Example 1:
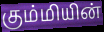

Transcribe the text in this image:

கும்மியின்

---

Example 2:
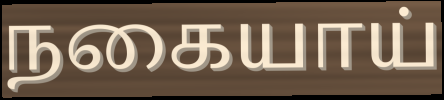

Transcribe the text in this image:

நகையாய்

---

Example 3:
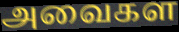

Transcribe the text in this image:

அவைகள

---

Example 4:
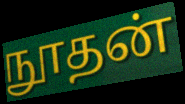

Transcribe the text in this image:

நூதன்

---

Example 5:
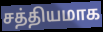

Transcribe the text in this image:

சத்தியமாக